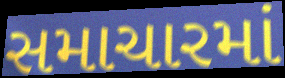
સમાચારમાં